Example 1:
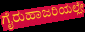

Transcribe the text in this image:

ಗೈರುಹಾಜರಿಯಲ್ಲೇ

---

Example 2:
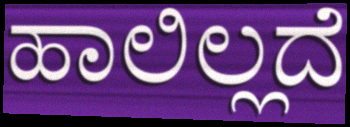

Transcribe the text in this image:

ಹಾಲಿಲ್ಲದೆ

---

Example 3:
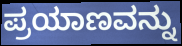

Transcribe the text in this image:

ಪ್ರಯಾಣವನ್ನು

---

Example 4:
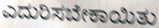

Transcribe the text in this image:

ಎದುರಿಸಬೇಕಾಯಿತು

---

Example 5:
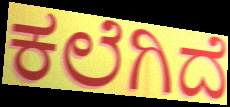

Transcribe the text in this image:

ಕಲೆಗಿದೆ